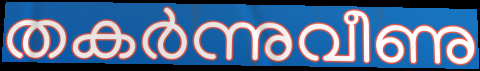
തകർന്നുവീണു